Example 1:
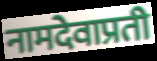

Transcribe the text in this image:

नामदेवाप्रती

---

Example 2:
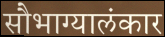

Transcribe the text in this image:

सौभाग्यालंकार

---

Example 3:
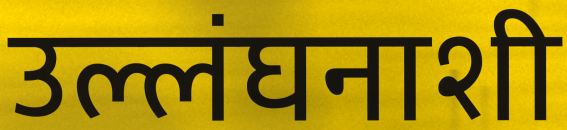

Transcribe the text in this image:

उल्लंघनाशी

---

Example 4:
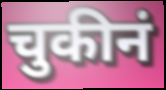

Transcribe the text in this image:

चुकीनं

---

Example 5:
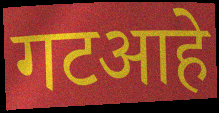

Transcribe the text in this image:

गटआहे